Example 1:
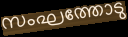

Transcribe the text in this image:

സംഘത്തോടു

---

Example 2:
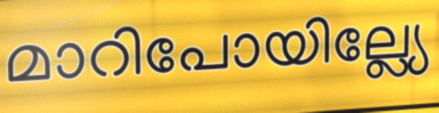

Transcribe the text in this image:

മാറിപോയില്ല്യേ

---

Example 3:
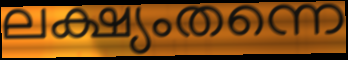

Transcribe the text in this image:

ലക്ഷ്യംതന്നെ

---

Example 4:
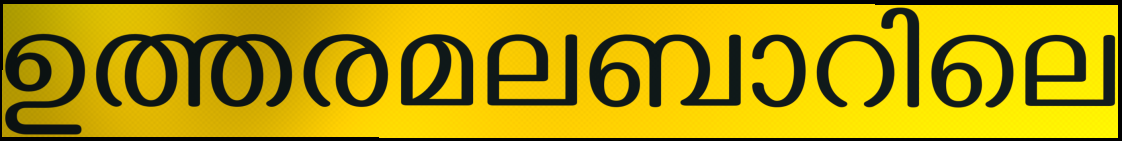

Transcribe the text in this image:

ഉത്തരമലബാറിലെ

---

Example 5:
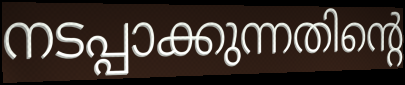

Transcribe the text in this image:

നടപ്പാക്കുന്നതിന്റെ